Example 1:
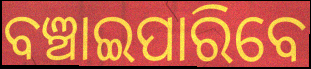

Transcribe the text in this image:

ବଞ୍ଚାଇପାରିବେ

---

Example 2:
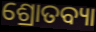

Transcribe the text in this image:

ଶ୍ରୋତବ୍ୟା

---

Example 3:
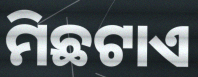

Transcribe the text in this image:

ମିଛଟାଏ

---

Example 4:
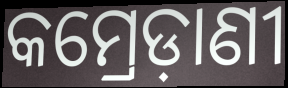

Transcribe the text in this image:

କମ୍ରେଡ଼ାଣୀ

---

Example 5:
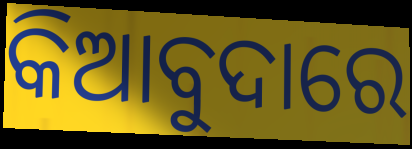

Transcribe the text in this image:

କିଆବୁଦାରେ